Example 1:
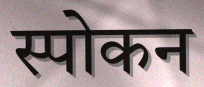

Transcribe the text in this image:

स्पोकन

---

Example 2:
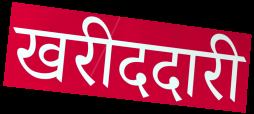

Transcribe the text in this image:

खरीददारी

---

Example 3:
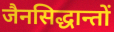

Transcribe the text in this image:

जैनसिद्धान्तों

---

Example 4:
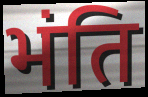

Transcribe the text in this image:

भंति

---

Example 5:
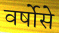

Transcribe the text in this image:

वर्षोसे